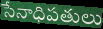
సేనాధిపతులు